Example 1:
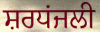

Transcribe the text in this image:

ਸ਼ਰਧਂਜਲੀ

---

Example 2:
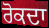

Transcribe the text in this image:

ਰੋਕਦਾ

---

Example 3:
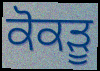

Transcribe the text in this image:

ਕੋਕੜੂ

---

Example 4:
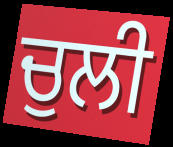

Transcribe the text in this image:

ਚੁਲੀ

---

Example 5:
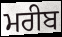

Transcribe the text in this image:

ਮਰੀਬ